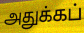
அதுக்கப்